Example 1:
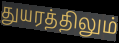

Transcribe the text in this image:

துயரத்திலும்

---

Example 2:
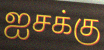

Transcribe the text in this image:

ஐசக்கு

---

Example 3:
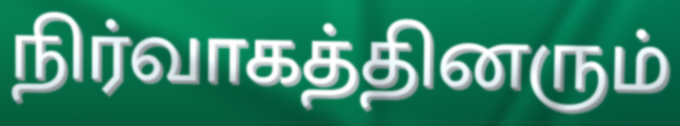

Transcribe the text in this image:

நிர்வாகத்தினரும்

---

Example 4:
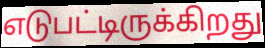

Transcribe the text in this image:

எடுபட்டிருக்கிறது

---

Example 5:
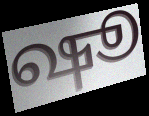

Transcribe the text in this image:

ஷூ